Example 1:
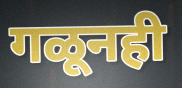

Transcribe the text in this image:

गळूनही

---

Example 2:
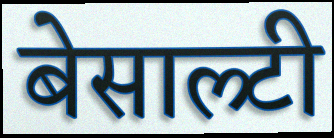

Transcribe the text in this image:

बेसाल्टी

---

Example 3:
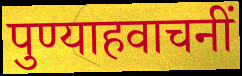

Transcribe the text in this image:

पुण्याहवाचनीं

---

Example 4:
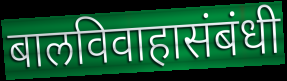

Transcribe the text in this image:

बालविवाहासंबंधी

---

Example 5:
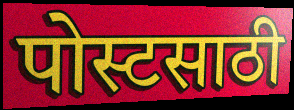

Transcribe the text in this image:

पोस्टसाठी